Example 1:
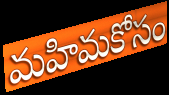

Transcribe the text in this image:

మహిమకోసం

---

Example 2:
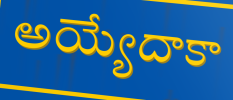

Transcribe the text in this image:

అయ్యేదాకా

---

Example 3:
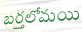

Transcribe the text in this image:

బర్తలోమయి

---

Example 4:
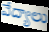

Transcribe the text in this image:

వేద్యాలు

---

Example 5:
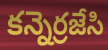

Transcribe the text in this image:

కన్నెర్రజేసి